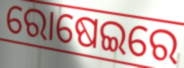
ରୋଷେଇରେ